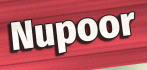
Nupoor